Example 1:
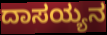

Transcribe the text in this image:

ದಾಸಯ್ಯನ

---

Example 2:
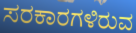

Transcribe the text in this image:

ಸರಕಾರಗಳಿರುವ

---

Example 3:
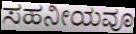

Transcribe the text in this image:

ಸಹನೀಯವೂ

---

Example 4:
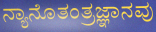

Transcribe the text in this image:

ನ್ಯಾನೊತಂತ್ರಜ್ಞಾನವು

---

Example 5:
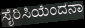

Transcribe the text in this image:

ಸೈರಿಸಿಯೆಂದನಾ